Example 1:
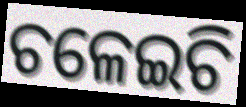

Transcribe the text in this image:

ଚଳେଇଚି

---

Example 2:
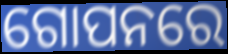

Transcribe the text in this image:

ଗୋପନରେ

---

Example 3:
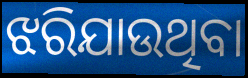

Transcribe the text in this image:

ଝରିଯାଉଥିବା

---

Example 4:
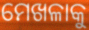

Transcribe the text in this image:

ମେଖଳାକୁ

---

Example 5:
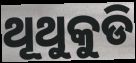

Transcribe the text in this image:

ଥୂଥୁକୁଡି